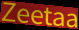
Zeetaa